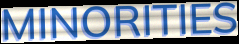
MINORITIES